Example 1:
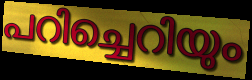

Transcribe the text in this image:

പറിച്ചെറിയും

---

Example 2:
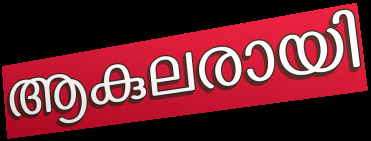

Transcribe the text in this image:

ആകുലരായി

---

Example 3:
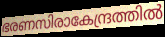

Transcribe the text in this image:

ഭരണസിരാകേന്ദ്രത്തിൽ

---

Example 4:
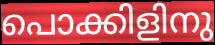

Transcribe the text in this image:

പൊക്കിളിനു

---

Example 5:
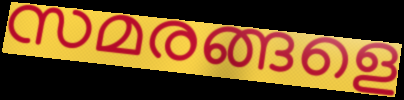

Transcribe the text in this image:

സമരങ്ങളെ